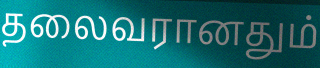
தலைவரானதும்